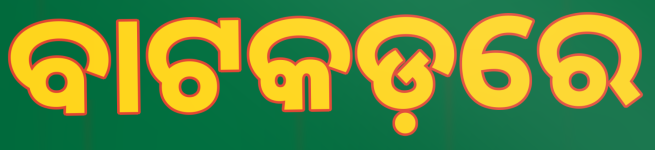
ବାଟକଡ଼ରେ